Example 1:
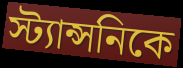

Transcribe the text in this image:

স্ট্যান্সনিকে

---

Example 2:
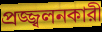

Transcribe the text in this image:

প্রজ্জ্বলনকারী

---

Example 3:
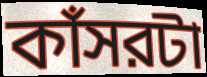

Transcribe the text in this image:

কাঁসরটা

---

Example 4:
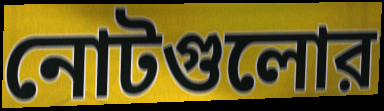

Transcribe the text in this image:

নোটগুলোর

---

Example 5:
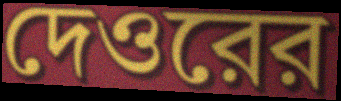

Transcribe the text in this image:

দেওরের